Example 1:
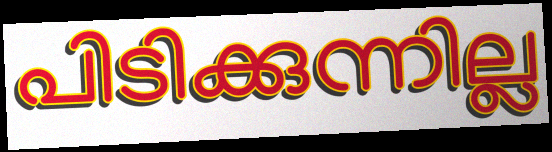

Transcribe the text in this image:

പിടിക്കുന്നില്ല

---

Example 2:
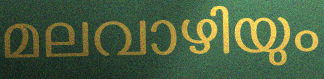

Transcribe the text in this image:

മലവാഴിയും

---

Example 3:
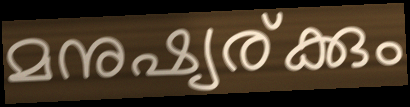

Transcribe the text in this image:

മനുഷ്യര്ക്കും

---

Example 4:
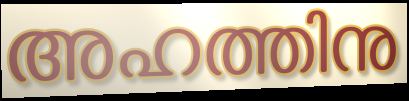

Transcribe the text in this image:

അഹത്തിനു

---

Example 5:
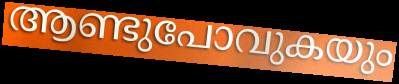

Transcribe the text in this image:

ആണ്ടുപോവുകയും